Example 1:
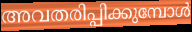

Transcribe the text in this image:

അവതരിപ്പിക്കുമ്പോൾ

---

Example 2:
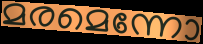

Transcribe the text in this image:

മരമെന്നോ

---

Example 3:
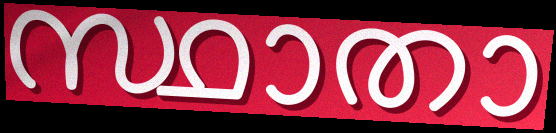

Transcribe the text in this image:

സ്ഥാതാ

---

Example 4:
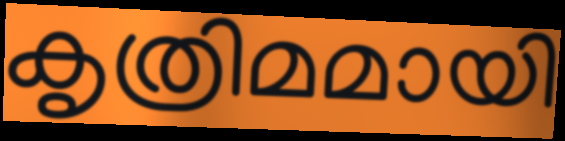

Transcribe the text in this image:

കൃത്രിമമായി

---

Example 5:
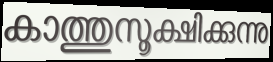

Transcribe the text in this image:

കാത്തുസൂക്ഷിക്കുന്നു